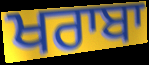
ਖਰਾਬਾ